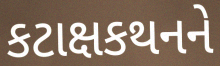
કટાક્ષકથનને